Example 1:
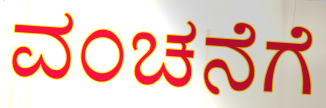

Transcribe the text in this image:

ವಂಚನೆಗೆ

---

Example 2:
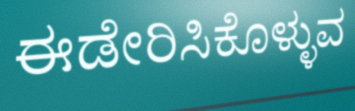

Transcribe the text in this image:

ಈಡೇರಿಸಿಕೊಳ್ಳುವ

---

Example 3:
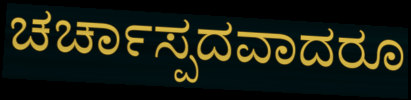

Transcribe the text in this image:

ಚರ್ಚಾಸ್ಪದವಾದರೂ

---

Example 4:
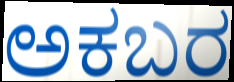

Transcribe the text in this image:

ಅಕಬರ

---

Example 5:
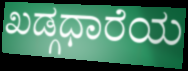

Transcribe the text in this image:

ಖಡ್ಗಧಾರೆಯ